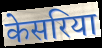
केसरिया